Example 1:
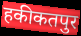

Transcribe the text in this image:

हकीकतपुर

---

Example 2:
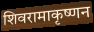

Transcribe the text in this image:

शिवरामाकृष्णन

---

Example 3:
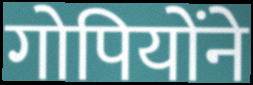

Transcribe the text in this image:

गोपियोंने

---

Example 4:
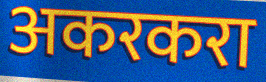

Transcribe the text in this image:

अकरकरा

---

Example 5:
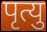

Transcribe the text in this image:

पृत्यु